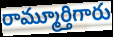
రామ్మూర్తిగారు